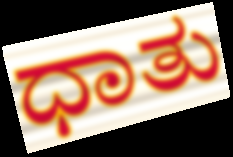
ಧಾತು